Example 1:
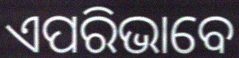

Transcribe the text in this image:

ଏପରିଭାବେ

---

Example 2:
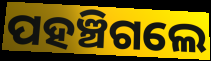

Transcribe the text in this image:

ପହଞ୍ଚିଗଲେ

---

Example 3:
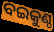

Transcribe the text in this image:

ବଇକୁଣ୍ଠ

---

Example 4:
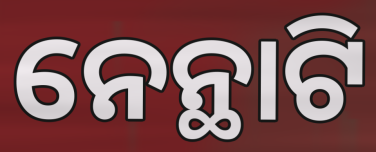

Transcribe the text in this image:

ନେନ୍ଥାଟି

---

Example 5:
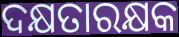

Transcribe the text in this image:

ଦକ୍ଷତାରକ୍ଷକ